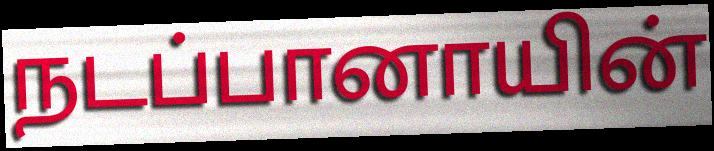
நடப்பானாயின்